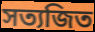
সত্যজিত